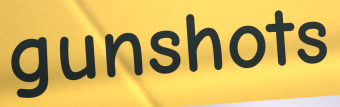
gunshots